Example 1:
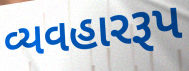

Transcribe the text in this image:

વ્યવહારરૂપ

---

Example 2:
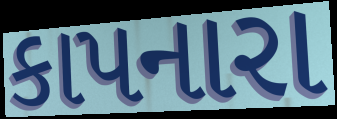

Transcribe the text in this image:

કાપનારા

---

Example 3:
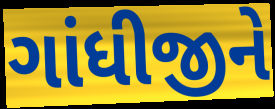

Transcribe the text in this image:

ગાંધીજીને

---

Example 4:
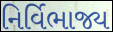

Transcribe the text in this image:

નિર્વિભાજ્ય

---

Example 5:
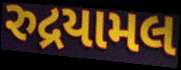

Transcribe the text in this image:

રુદ્રયામલ